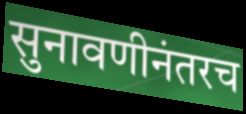
सुनावणीनंतरच